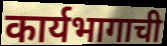
कार्यभागाची